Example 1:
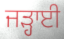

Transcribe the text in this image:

ਜੜ੍ਹਾਈ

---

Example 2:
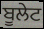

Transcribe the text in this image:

ਬੂਲੇਟ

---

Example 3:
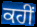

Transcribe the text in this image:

ਕਹੀਂ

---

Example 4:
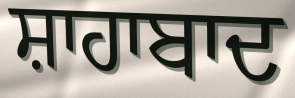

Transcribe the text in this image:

ਸ਼ਾਹਾਬਾਦ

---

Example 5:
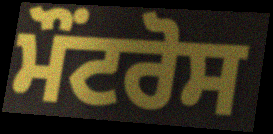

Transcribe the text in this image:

ਮੌਂਟਰੋਸ